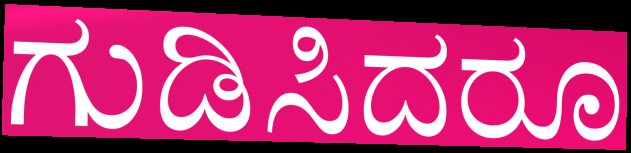
ಗುಡಿಸಿದರೂ